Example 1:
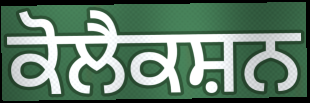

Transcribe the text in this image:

ਕੋਲੈਕਸ਼ਨ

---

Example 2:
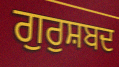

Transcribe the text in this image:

ਗੁਰੁਸ਼ਬਦ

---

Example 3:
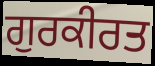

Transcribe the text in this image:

ਗੁਰਕੀਰਤ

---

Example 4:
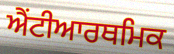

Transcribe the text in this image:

ਐਂਟੀਆਰਥਮਿਕ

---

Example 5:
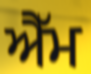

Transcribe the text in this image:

ਐੈੱਮ